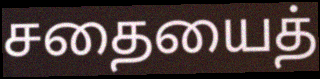
சதையைத்